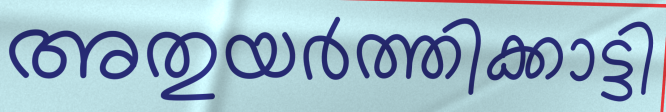
അതുയർത്തിക്കാട്ടി